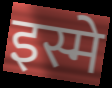
इस्मे